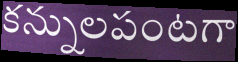
కన్నులపంటగా